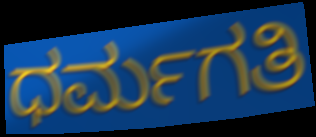
ಧರ್ಮಗತಿ